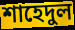
শাহেদুল